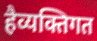
हैव्यक्तिगत